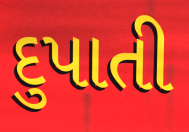
દુપાતી